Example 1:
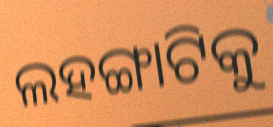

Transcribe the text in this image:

ଲହଙ୍ଗାଟିକୁ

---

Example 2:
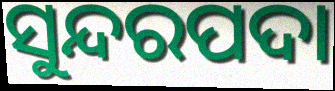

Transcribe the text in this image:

ସୁନ୍ଦରପଦା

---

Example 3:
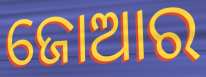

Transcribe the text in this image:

ଜୋଆର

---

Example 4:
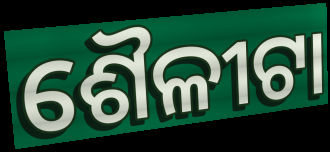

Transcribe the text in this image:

ଶୈଳୀଟା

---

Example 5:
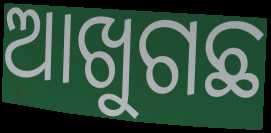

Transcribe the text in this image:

ଆଖୁଗଛ